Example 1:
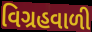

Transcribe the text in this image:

વિગ્રહવાળી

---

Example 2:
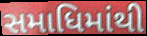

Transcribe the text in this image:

સમાધિમાંથી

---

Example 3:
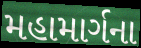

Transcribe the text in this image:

મહામાર્ગના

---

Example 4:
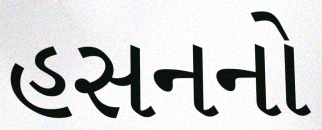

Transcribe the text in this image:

હસનનો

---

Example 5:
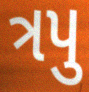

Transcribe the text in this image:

ત્રપુ